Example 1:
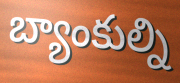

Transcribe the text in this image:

బ్యాంకుల్ని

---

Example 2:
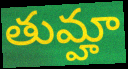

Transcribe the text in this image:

తుమ్హా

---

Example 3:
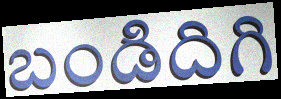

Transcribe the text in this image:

బండిదిగి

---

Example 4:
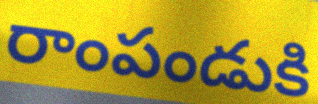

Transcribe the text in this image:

రాంపండుకి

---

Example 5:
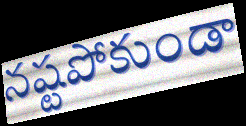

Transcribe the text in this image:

నష్టపోకుండా